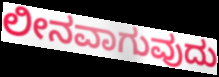
ಲೀನವಾಗುವುದು